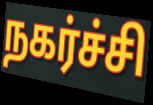
நகர்ச்சி